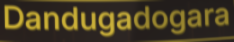
Dandugadogara